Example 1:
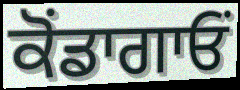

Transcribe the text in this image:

ਕੋਂਡਾਗਾਓਂ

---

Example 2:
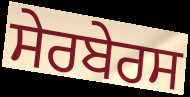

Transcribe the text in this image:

ਸੇਰਬੇਰਸ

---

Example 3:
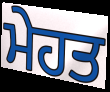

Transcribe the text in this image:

ਮੇਹਤ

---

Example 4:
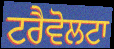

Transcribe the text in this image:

ਟਰੈਵੋਲਟਾ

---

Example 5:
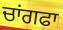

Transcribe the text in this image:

ਚਾਂਗਫਾ